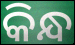
କିନ୍ଧ